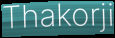
Thakorji